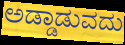
ಅಡ್ಡಾಡುವದು